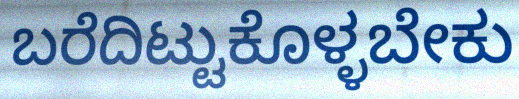
ಬರೆದಿಟ್ಟುಕೊಳ್ಳಬೇಕು